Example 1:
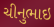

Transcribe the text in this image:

ચીનુભાઇ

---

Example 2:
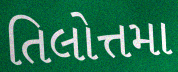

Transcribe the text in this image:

તિલોત્તમા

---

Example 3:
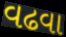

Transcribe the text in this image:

વઢવા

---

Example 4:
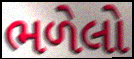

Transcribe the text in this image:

ભળેલો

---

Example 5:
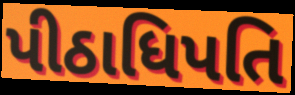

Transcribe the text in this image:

પીઠાધિપતિ